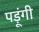
पड़ूंगी